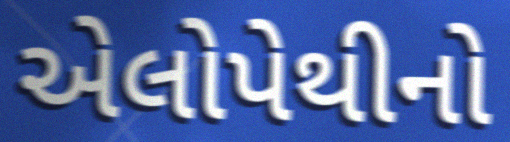
એલોપેથીનો